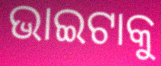
ଭାଇଟାକୁ